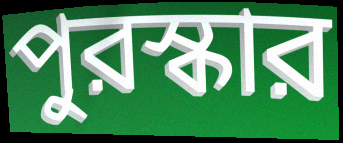
পুরস্কার